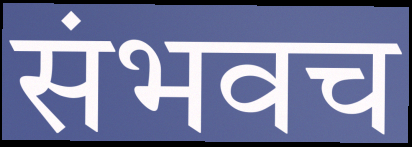
संभवच